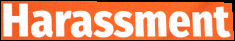
Harassment